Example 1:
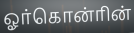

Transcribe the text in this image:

ஓர்கொன்ரின்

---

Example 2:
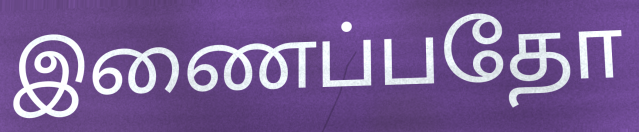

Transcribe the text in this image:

இணைப்பதோ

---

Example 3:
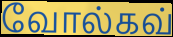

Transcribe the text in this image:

வோல்கவ்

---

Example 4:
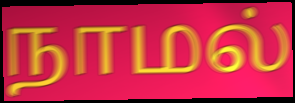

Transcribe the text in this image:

நாமல்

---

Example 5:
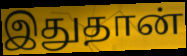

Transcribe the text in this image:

இதுதான்